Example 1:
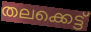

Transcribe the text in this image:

തലക്കെട്ട്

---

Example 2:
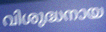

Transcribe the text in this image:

വിശുദ്ധനായ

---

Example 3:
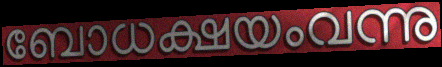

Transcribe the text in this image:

ബോധക്ഷയംവന്നു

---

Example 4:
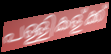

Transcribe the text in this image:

പള്ളികള്ക്ക്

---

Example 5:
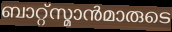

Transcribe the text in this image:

ബാറ്റ്സ്മാൻമാരുടെ